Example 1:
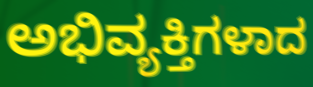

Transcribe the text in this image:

ಅಭಿವ್ಯಕ್ತಿಗಳಾದ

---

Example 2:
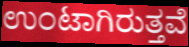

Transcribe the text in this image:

ಉಂಟಾಗಿರುತ್ತವೆ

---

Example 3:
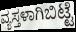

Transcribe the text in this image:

ವ್ಯಸ್ತಳಾಗಿಬಿಟ್ಟೆ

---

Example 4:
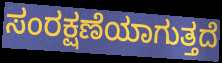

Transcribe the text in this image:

ಸಂರಕ್ಷಣೆಯಾಗುತ್ತದೆ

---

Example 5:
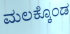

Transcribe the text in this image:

ಮಲಕ್ಕೊಂಡ